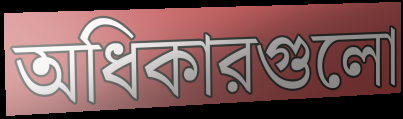
অধিকারগুলো